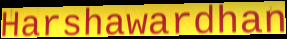
Harshawardhan